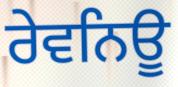
ਰੇਵਨਿਊ